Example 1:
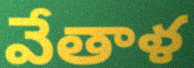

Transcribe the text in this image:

వేతాళ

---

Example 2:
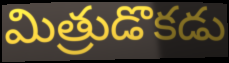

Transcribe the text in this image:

మిత్రుడొకడు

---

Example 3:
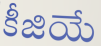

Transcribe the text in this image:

కీజియే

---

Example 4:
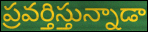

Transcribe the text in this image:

ప్రవర్తిస్తున్నాడా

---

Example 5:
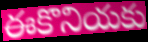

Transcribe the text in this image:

ఈకొనియకు